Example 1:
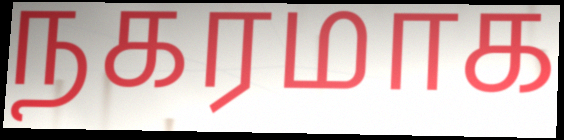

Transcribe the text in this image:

நகரமாக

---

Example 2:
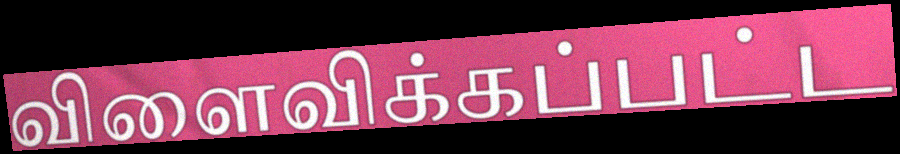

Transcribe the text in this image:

விளைவிக்கப்பட்ட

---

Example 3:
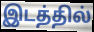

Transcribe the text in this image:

இடத்தில்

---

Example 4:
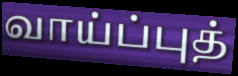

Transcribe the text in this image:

வாய்ப்புத்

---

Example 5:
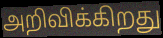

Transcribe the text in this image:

அறிவிக்கிறது